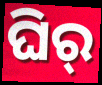
ଘିର୍